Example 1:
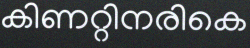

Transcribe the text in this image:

കിണറ്റിനരികെ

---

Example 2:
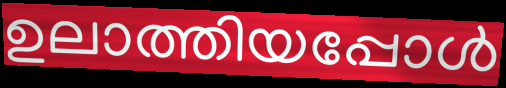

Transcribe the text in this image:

ഉലാത്തിയപ്പോൾ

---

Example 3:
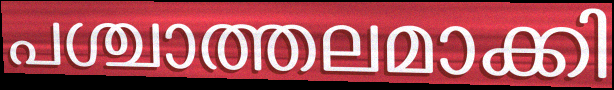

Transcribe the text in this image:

പശ്ചാത്തലമാക്കി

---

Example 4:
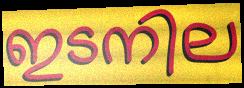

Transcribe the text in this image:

ഇടനില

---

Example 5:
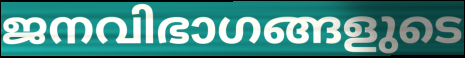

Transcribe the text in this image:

ജനവിഭാഗങ്ങളുടെ